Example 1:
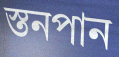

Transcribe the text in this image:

স্তনপান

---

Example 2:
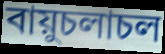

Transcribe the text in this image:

বায়ুচলাচল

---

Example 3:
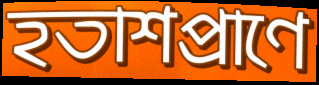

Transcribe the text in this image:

হতাশপ্রাণে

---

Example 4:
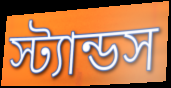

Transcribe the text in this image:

স্ট্যান্ডস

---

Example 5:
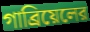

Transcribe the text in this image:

গাব্রিয়েলের